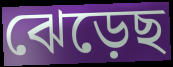
ঝেড়েছ